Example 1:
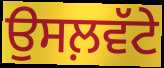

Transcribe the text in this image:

ਉਸਲ਼ਵੱਟੇ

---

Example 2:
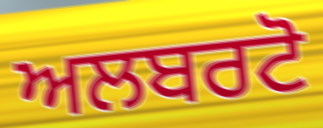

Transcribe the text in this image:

ਅਲਬਰਟੋ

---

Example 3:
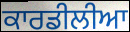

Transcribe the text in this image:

ਕਾਰਡੀਲੀਆ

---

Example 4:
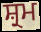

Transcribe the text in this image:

ਸ਼੍ਰਮ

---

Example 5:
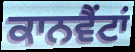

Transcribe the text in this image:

ਕਾਨਵੈਂਟਾਂ